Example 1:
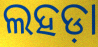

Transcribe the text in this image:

ଲହଡ଼ା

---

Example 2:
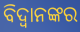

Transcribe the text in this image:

ବିଦ୍ୱାନଙ୍କର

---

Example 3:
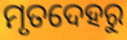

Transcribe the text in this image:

ମୃତଦେହରୁ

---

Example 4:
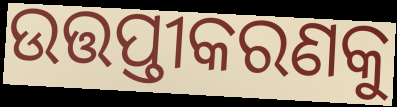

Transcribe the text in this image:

ଉତ୍ତପ୍ତୀକରଣକୁ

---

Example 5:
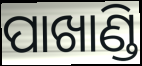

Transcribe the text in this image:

ପାଖାଣ୍ଡି